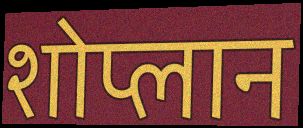
शोप्लान